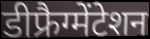
डीफ्रैग्मेंटेशन